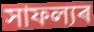
সাফল্যৰ